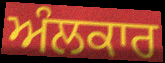
ਅੰਲਕਾਰ